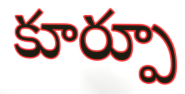
కూర్పూ